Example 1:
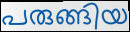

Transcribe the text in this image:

പരുങ്ങിയ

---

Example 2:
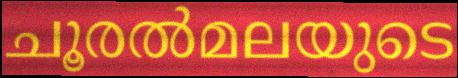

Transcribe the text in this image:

ചൂരൽമലയുടെ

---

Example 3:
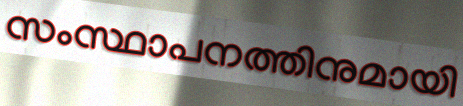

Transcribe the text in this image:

സംസ്ഥാപനത്തിനുമായി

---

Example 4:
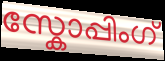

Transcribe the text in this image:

സ്കോപ്പിംഗ്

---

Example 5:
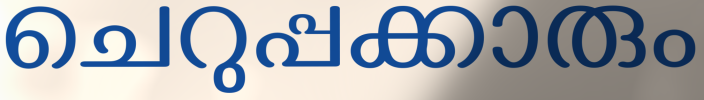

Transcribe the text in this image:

ചെറുപ്പക്കാരും